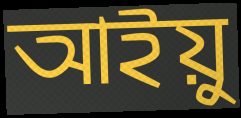
আইয়ু